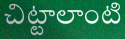
చిట్టాలాంటి